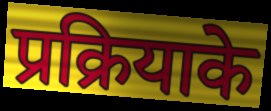
प्रक्रियाके